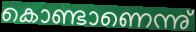
കൊണ്ടാണെന്നു്